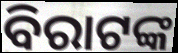
ବିରାଟଙ୍କ